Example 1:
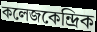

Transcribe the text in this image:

কলেজকেন্দ্রিক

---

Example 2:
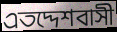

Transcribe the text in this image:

এতদ্দেশবাসী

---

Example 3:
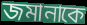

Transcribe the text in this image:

জমানাকে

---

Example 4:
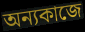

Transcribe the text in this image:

অন্যকাজে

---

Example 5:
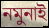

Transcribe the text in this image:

নমুনাই